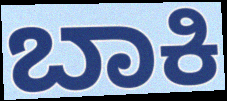
ಬಾಕಿ